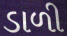
ડાળી